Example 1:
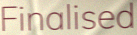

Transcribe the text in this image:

Finalised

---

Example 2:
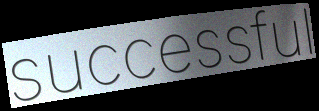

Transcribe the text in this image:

successful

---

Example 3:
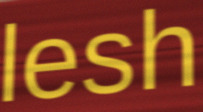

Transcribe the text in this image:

lesh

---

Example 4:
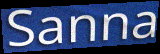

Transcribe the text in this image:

Sanna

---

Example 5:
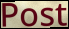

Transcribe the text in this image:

Post